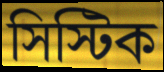
সিস্টিক